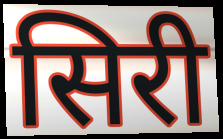
सिरी